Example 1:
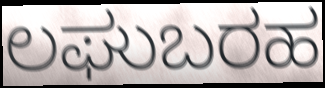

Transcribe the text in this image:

ಲಘುಬರಹ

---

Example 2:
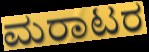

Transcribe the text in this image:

ಮರಾಟರ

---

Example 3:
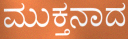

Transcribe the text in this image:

ಮುಕ್ತನಾದ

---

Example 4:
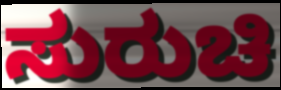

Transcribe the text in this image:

ಸುರುಚಿ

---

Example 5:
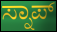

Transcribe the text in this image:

ಸ್ನಾಪ್